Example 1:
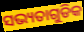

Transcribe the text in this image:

ସଭ୍ୟତାଗୁଡିକ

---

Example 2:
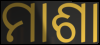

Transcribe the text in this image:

ମାଶା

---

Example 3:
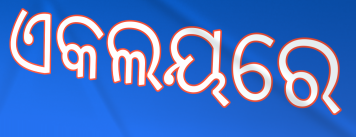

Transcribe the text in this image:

ଏକଲୟରେ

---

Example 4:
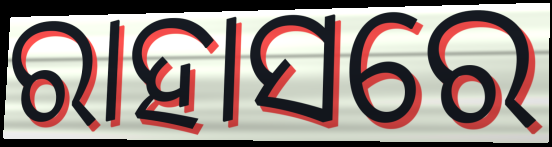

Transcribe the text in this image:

ରାହାସରେ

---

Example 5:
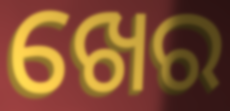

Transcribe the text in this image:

ଖେର